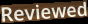
Reviewed